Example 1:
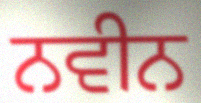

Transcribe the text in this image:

ਨਵੀਨ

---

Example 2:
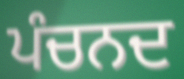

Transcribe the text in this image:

ਪੰਚਨਦ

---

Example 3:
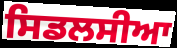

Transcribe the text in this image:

ਸਿਡਲਸੀਆ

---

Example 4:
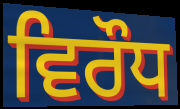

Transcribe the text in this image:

ਵਿਰੌਧ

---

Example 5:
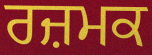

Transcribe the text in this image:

ਰਜ਼ਮਕ